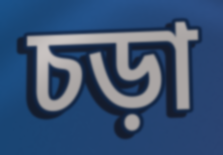
চড়া